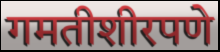
गमतीशीरपणे